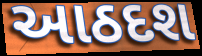
આઠદશ